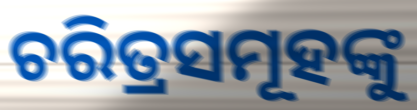
ଚରିତ୍ରସମୂହଙ୍କୁ